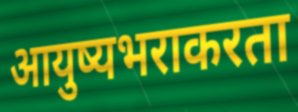
आयुष्यभराकरता